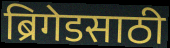
ब्रिगेडसाठी